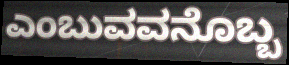
ಎಂಬುವವನೊಬ್ಬ